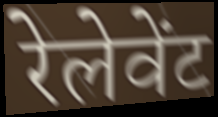
रेलेवेंट